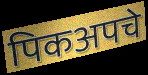
पिकअपचे